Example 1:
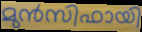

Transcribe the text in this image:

മുൻസിഫായി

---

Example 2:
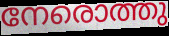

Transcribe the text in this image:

നേരൊത്തു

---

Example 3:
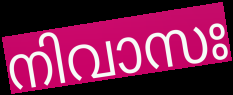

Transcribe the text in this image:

നിവാസഃ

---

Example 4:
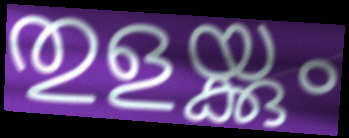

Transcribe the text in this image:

തുളയ്ക്കും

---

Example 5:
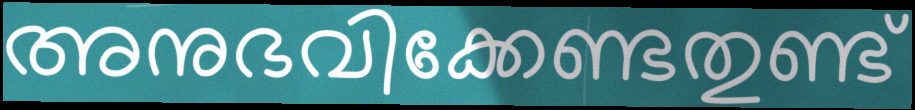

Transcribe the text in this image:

അനുഭവിക്കേണ്ടതുണ്ട്